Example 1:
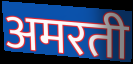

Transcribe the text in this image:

अमरती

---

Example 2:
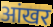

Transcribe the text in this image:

आंखर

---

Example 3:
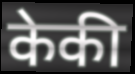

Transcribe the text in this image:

केकी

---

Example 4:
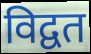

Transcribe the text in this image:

विद्वत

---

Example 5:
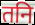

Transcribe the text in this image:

तनि